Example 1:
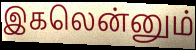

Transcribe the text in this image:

இகலென்னும்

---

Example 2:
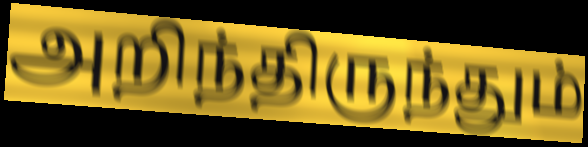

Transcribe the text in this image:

அறிந்திருந்தும்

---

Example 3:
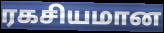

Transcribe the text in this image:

ரகசியமான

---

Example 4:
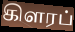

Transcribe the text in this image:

கிளரப்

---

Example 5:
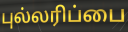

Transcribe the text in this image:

புல்லரிப்பை